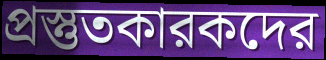
প্রস্তুতকারকদের